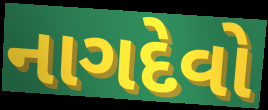
નાગદેવો